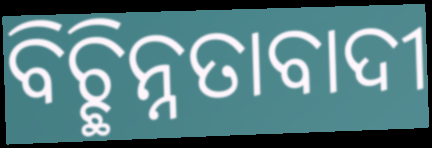
ବିଚ୍ଛିନ୍ନତାବାଦୀ